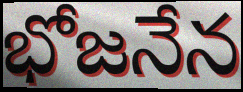
భోజనేన